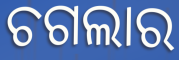
ଚଗଲାର